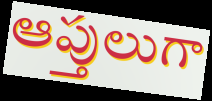
ఆప్తులుగా